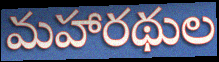
మహారథుల